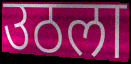
उठला